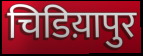
चिडिय़ापुर